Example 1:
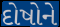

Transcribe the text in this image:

દોષોને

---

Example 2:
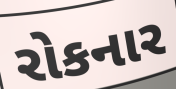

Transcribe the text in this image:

રોકનાર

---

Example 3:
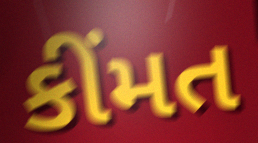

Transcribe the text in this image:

કીંમત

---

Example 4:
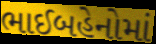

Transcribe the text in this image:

ભાઈબહેનોમાં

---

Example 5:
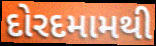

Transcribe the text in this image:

દોરદમામથી